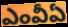
ఎంవీఏ